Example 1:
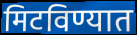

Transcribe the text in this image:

मिटविण्यात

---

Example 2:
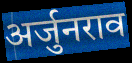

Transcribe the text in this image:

अर्जुनराव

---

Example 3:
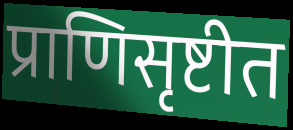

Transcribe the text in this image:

प्राणिसृष्टीत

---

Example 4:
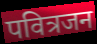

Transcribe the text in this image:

पवित्रजन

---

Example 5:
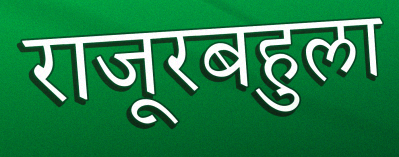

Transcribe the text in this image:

राजूरबहुला